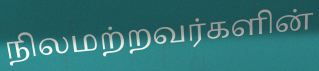
நிலமற்றவர்களின்